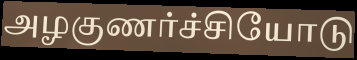
அழகுணர்ச்சியோடு